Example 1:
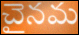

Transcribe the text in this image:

చైనమ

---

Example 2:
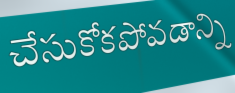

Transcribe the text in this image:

చేసుకోకపోవడాన్ని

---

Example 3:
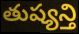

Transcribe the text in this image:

తుష్యన్తి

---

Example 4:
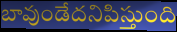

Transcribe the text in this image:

బావుండేదనిపిస్తుంది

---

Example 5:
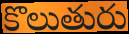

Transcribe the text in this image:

కొలుతురు